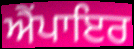
ਐਂਪਾਇਰ